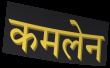
कमलेन